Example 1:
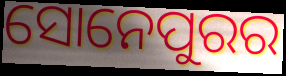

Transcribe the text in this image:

ସୋନେପୁରର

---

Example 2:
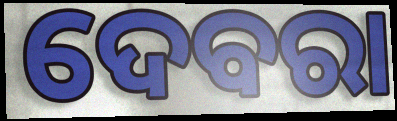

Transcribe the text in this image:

ଦେବରା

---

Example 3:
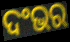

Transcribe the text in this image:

ଦଂଭର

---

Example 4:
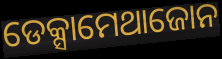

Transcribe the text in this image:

ଡେକ୍ସାମେଥାଜୋନ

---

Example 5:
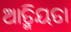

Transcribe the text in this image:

ଆତ୍ମିୟତା